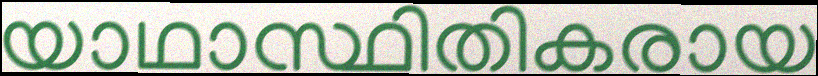
യാഥാസ്ഥിതികരായ